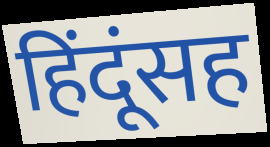
हिंदूंसह